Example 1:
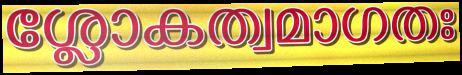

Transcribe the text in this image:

ശ്ലോകത്വമാഗതഃ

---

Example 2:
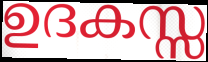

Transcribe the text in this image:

ഉദകസ്സ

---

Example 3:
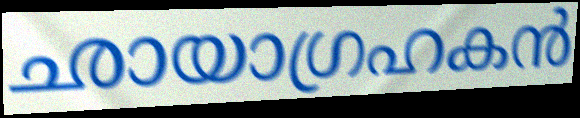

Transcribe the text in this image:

ഛായാഗ്രഹകൻ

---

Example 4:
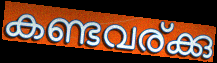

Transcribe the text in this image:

കണ്ടവര്ക്കു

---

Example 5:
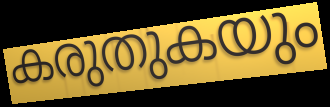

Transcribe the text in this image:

കരുതുകയും